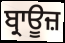
ਬ੍ਰਾਊਜ਼